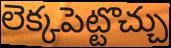
లెక్కపెట్టొచ్చు